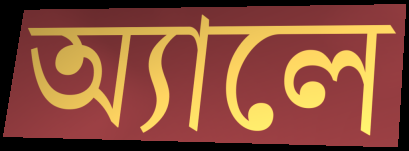
অ্যালে